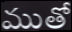
ముతో